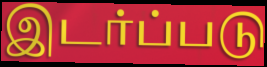
இடர்ப்படு